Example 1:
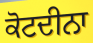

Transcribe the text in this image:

ਕੋਟਦੀਨਾ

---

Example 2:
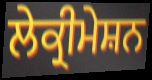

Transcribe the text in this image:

ਲੇਕ੍ਰੀਮੇਸ਼ਨ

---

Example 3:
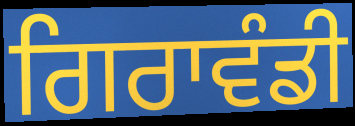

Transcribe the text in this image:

ਗਿਰਾਵੰਡੀ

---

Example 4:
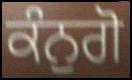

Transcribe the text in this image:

ਕੰਨੁਗੋ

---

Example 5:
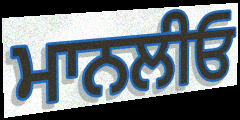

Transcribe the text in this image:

ਮਾਨਲੀਓ